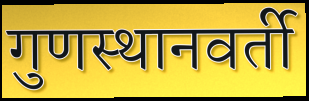
गुणस्थानवर्ती